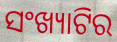
ସଂଖ୍ୟାଟିର